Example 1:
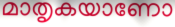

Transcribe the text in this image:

മാതൃകയാണോ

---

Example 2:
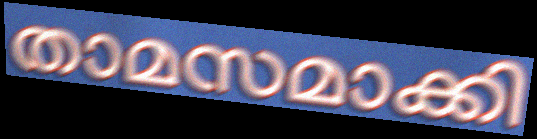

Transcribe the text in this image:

താമസമാക്കി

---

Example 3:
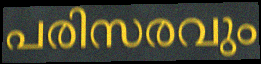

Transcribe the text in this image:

പരിസരവും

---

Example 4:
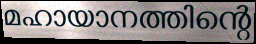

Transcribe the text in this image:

മഹായാനത്തിന്റെ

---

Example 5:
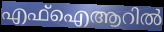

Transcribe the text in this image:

എഫ്ഐആറിൽ